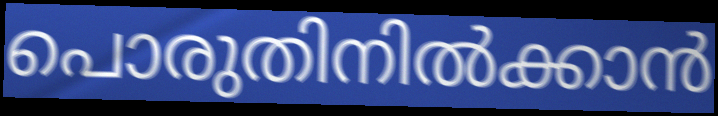
പൊരുതിനിൽക്കാൻ